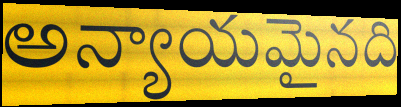
అన్యాయమైనది